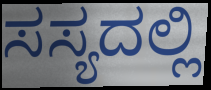
ಸಸ್ಯದಲ್ಲಿ